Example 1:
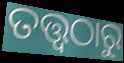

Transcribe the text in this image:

ତତ୍ତ୍ବଠାରୁ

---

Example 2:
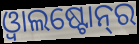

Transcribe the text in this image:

ଓ୍ୱାଲଷ୍ଟୋନ୍‌ର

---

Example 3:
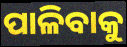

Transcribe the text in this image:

ପାଳିବାକୁ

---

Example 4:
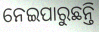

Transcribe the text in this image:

ନେଇପାରୁଛନ୍ତି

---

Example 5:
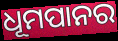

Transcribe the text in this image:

ଧୂମପାନର